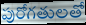
పురోగతులతో